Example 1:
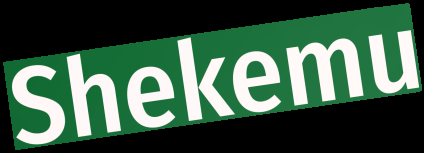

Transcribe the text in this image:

Shekemu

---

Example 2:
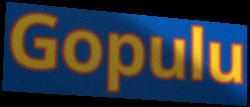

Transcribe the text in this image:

Gopulu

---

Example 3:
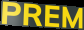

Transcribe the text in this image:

PREM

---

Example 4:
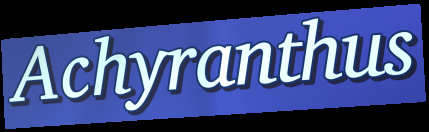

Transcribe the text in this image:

Achyranthus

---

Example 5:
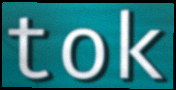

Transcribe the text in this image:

tok